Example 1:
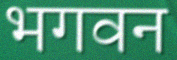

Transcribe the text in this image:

भगवन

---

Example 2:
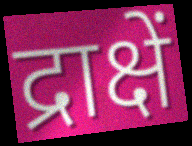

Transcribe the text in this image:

द्राक्षें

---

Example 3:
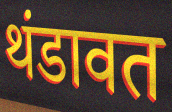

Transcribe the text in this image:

थंडावत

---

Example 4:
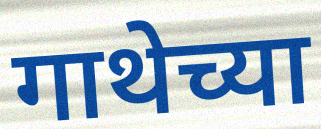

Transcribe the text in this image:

गाथेच्या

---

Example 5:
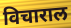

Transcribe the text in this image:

विचाराल